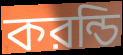
করন্ডি